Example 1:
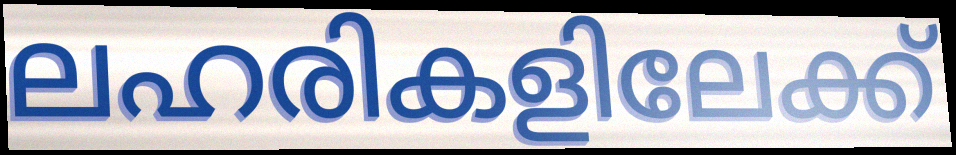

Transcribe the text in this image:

ലഹരികളിലേക്ക്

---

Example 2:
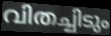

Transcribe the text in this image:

വിതച്ചിടും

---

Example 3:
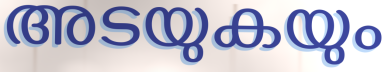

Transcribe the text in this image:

അടയുകയും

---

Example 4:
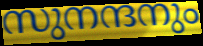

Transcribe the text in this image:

സുനന്ദനും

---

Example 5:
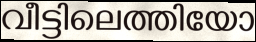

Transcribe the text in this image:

വീട്ടിലെത്തിയോ